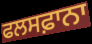
ਫਲਸਫ਼ਾਨਾ